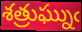
శత్రుఘ్నుఁ